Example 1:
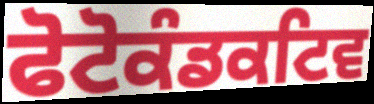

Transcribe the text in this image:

ਫੋਟੋਕੰਡਕਟਿਵ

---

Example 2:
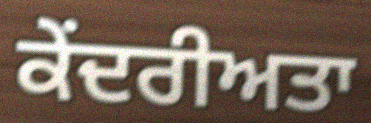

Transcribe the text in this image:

ਕੇਂਦਰੀਅਤਾ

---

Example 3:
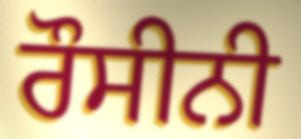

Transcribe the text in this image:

ਰੌਸੀਨੀ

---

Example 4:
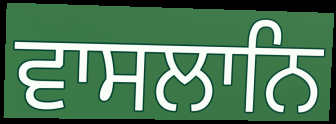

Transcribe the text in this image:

ਵਾਸਲਾਨਿ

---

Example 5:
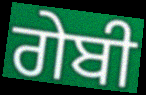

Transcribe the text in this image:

ਗੇਬੀ